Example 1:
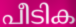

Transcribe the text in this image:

പീടിക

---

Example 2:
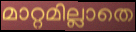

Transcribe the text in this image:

മാറ്റമില്ലാതെ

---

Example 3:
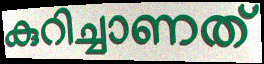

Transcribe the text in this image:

കുറിച്ചാണത്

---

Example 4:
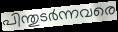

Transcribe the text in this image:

പിന്തുടർന്നവരെ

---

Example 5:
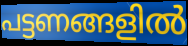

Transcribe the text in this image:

പട്ടണങ്ങളിൽ